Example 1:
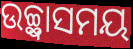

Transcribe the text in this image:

ଉଚ୍ଛ୍ଵାସମୟ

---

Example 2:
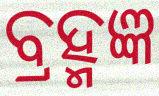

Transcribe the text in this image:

ବ୍ରହ୍ମଜ୍ଞ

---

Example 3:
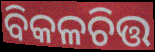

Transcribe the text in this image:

ବିକଳଚିତ୍ତ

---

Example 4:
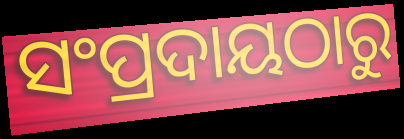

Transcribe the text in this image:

ସଂପ୍ରଦାୟଠାରୁ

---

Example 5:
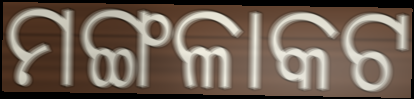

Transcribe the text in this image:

ମଙ୍ଗଳାକଟ